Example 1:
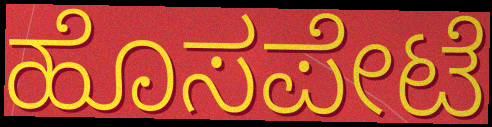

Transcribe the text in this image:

ಹೊಸಪೇಟೆ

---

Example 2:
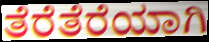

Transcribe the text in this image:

ತೆರೆತೆರೆಯಾಗಿ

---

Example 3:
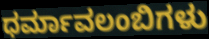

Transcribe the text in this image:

ಧರ್ಮಾವಲಂಬಿಗಳು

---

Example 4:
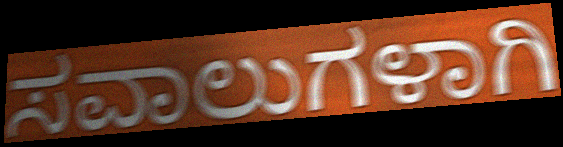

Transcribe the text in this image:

ಸವಾಲುಗಳಾಗಿ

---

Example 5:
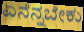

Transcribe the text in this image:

ಏನೆನ್ನಬೇಕು